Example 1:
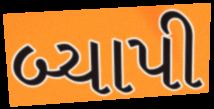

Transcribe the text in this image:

બ્યાપી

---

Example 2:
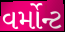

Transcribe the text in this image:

વર્મોન્ટ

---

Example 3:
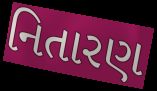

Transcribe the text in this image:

નિતારણ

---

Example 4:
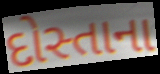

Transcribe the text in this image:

દોસ્તાના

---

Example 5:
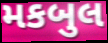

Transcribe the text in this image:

મકબુલ